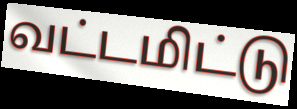
வட்டமிட்டு